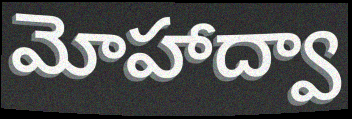
మోహాద్వా